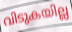
വിടുകയില്ല